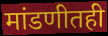
मांडणीतही